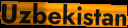
Uzbekistan